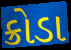
ક્રોડા